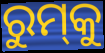
ରୁମ୍‍କୁ